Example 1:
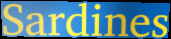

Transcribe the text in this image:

Sardines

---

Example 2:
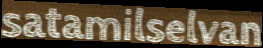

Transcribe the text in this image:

satamilselvan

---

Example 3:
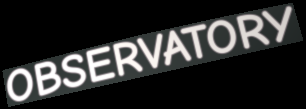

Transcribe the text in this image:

OBSERVATORY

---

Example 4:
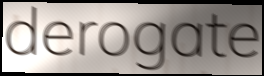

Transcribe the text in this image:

derogate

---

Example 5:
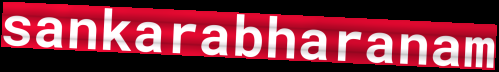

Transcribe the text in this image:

sankarabharanam